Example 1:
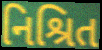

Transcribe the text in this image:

નિશ્રિત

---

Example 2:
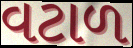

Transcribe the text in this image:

વટાળ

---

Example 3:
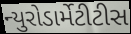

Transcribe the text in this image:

ન્યુરોડાર્મેટીટીસ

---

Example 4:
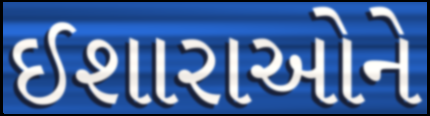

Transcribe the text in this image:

ઈશારાઓને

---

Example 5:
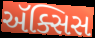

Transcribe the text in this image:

ઍક્સિસ